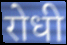
रोधी